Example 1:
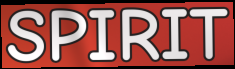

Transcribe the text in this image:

SPIRIT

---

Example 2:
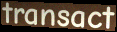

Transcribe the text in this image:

transact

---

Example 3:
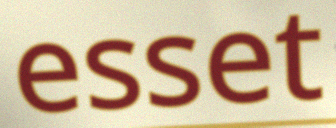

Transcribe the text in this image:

esset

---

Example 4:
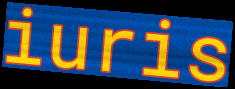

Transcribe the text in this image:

iuris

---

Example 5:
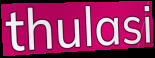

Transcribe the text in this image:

thulasi